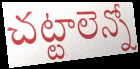
చట్టాలెన్నో